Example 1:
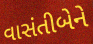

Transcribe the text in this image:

વાસંતીબેને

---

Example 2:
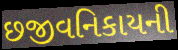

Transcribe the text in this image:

છજીવનિકાયની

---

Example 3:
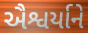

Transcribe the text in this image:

ઐશ્વર્યાને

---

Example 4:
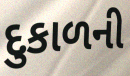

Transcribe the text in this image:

દુકાળની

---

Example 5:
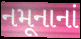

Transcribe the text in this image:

નમૂનાનાં